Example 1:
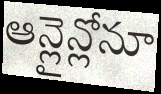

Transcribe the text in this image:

ఆన్లైన్లోనూ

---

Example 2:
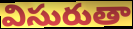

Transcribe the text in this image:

విసురుతా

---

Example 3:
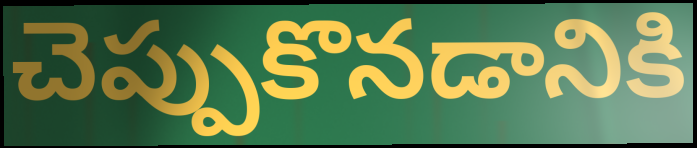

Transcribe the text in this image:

చెప్పుకొనడానికి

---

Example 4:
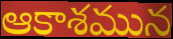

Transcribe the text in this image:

ఆకాశమున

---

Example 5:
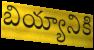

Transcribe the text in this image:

బియ్యానికి